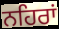
ਨਹਿਰਾਂ